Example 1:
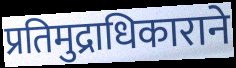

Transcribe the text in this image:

प्रतिमुद्राधिकाराने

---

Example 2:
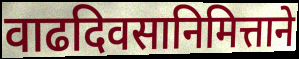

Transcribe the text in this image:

वाढदिवसानिमित्ताने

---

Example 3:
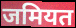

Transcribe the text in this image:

जमियत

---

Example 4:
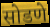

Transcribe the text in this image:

सोडणे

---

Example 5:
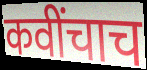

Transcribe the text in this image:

कवींचाच